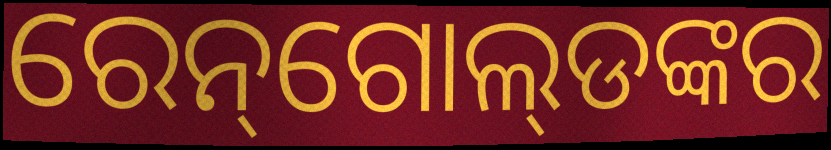
ରେନ୍‌ଗୋଲ୍‌ଡଙ୍କର